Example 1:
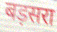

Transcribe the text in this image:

बड़सरा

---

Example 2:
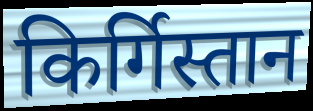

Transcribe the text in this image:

किर्गिस्तान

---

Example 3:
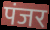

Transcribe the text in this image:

पंजर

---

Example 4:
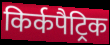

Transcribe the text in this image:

किर्कपैट्रिक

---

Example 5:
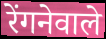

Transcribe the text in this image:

रेंगनेवाले